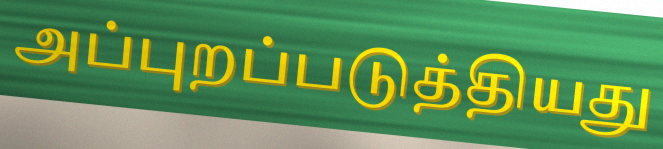
அப்புறப்படுத்தியது